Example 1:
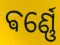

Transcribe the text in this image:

ଵର୍ଣ୍ଣେ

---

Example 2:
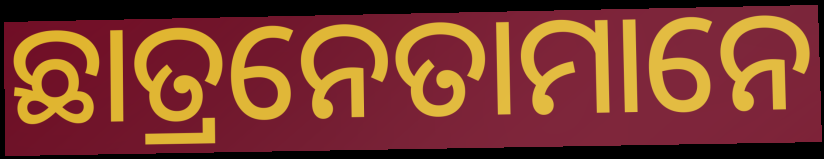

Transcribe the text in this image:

ଛାତ୍ରନେତାମାନେ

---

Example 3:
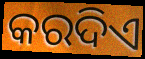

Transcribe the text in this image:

କରଦିଏ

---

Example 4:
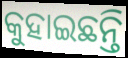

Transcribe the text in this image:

କୁହାଇଛନ୍ତି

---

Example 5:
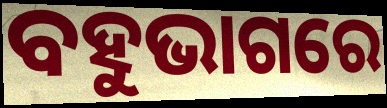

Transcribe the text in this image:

ବହୁଭାଗରେ